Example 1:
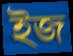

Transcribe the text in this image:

ইজ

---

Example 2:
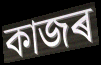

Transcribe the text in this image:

কাজৰ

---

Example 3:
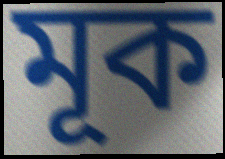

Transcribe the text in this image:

মূক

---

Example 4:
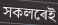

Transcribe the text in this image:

সকলৰেই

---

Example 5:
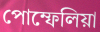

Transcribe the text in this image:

পোম্ফেলিয়া